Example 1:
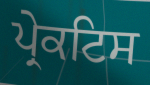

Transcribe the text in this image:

ਪ੍ਰੇਕਟਿਸ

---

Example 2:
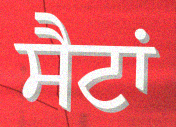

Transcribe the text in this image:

ਸੈਟਾਂ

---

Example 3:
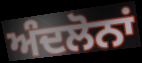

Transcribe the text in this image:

ਅੰਦਲੋਨਾਂ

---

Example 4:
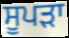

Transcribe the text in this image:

ਸੂਪੜਾ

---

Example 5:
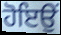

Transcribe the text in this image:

ਹੋਇਉਂ